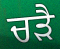
ਚੜੈ